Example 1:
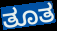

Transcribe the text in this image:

ತೂತ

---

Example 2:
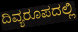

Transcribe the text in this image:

ದಿವ್ಯರೂಪದಲ್ಲಿ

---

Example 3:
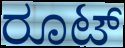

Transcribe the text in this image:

ರೂಟ್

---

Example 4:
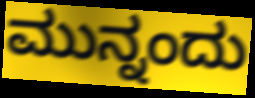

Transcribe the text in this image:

ಮುನ್ನಂದು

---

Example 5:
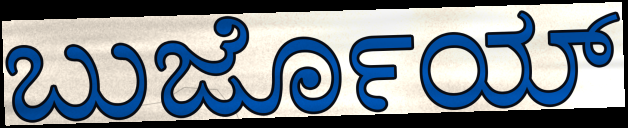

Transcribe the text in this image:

ಬುರ್ಜೊಯ್